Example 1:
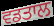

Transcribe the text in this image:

ਵਡਤਾਲ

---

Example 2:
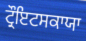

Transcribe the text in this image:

ਟ੍ਰੌਇਟਸਕਾਯਾ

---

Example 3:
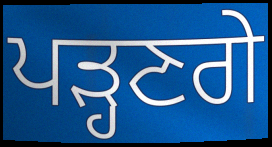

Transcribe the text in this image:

ਪੜ੍ਹਣਗੇ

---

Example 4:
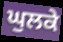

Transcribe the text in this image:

ਘੁਲਕੇ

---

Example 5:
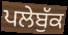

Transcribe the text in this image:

ਪਲੇਬੁੱਕ